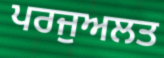
ਪਰਜੁਅਲਤ